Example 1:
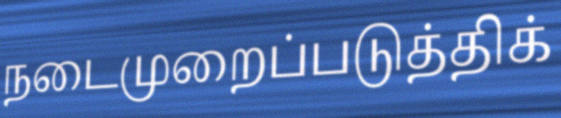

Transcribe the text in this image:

நடைமுறைப்படுத்திக்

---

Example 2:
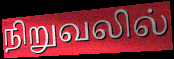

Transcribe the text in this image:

நிறுவலில்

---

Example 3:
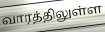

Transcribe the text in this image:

வாரத்திலுள்ள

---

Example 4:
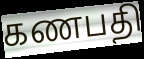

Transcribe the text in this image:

கணபதி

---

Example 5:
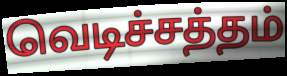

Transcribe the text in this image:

வெடிச்சத்தம்